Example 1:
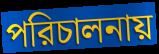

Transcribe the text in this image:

পরিচালনায়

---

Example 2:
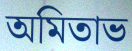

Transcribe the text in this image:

অমিতাভ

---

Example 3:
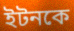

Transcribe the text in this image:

ইটনকে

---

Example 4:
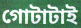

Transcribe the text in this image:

গোটাটাই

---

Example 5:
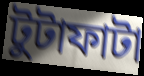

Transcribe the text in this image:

টুটাফাটা